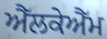
ਐੱਲਕੇਐੱਮ